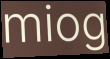
miog